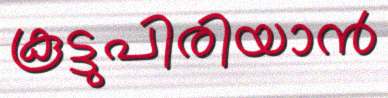
കൂട്ടുപിരിയാൻ